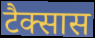
टैक्सास